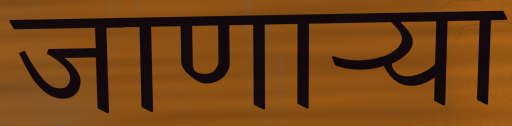
जाणाऱ्या